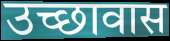
उच्छावास